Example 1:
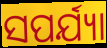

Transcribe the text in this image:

ସପର୍ଯ୍ୟା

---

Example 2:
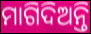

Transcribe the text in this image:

ମାଗିଦିଅନ୍ତି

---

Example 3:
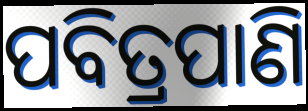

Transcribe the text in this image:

ପବିତ୍ରପାଣି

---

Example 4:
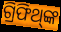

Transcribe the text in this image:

ଗ୍ରିଫିଥ୍‌ଙ୍କ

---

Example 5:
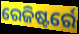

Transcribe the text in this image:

ରେଜିଷ୍ଟର୍ରେ